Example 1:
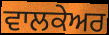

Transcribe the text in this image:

ਵਾਲਕੇਅਰ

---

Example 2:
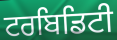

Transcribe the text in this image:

ਟਰਬਿਡਿਟੀ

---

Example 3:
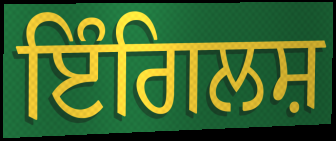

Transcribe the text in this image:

ਇੰਗਿਲਸ਼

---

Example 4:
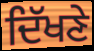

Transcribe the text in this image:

ਦਿੱਖਣੇ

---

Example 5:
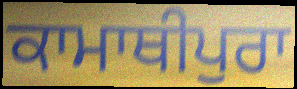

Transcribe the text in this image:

ਕਾਮਾਥੀਪੁਰਾ